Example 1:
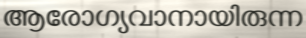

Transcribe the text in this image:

ആരോഗ്യവാനായിരുന്ന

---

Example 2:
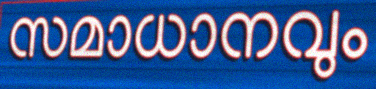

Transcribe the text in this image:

സമാധാനവും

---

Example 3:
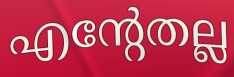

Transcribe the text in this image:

എന്റേതല്ല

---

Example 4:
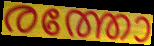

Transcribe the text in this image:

രത്തോ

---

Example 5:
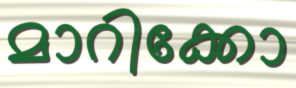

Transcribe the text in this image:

മാറിക്കോ